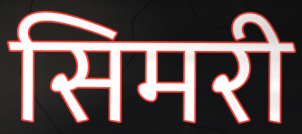
सिमरी